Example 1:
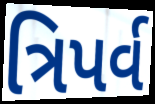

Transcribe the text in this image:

ત્રિપર્વ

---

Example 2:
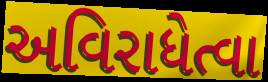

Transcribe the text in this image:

અવિરાધેત્વા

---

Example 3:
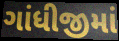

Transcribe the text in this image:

ગાંધીજીમાં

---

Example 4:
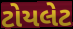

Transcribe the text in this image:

ટોયલેટ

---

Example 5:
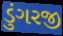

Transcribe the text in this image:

ડુંગરજી